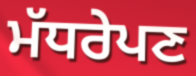
ਮੱਧਰੇਪਣ